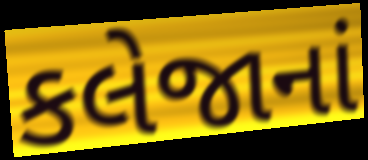
કલેજાનાં